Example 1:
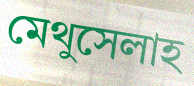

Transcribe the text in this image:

মেথুসেলাহ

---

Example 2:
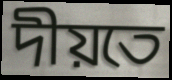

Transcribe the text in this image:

দীয়তে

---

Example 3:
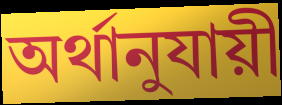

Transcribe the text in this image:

অর্থানুযায়ী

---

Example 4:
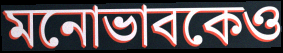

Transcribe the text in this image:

মনোভাবকেও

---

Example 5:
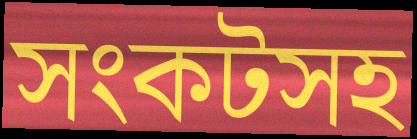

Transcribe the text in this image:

সংকটসহ